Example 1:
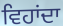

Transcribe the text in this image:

ਵਿਹਾਂਦਾ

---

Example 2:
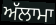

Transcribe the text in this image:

ਅੱਲਾਮਾ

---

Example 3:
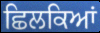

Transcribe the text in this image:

ਛਿਲਕਿਆਂ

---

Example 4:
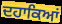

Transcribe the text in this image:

ਦਹਾਕਿਆਂ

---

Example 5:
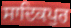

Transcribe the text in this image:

ਸਾਦਿਕਪੁਰ